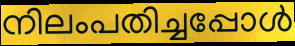
നിലംപതിച്ചപ്പോൾ